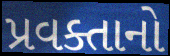
પ્રવક્તાનો